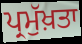
ਪ੍ਰਮੁੱਖ਼ਤਾ